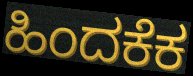
ಹಿಂದಕೆಕ